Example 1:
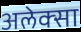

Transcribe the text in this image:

अलेक्‍सा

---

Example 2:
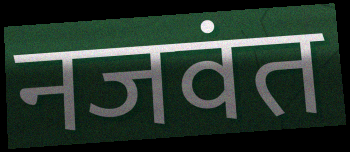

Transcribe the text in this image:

नजवंत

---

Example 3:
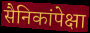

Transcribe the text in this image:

सैनिकांपेक्षा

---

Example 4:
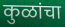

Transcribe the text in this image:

कुळांचा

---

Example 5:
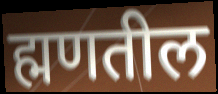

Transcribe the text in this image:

ह्मणतील